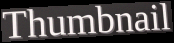
Thumbnail